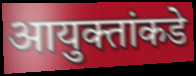
आयुक्तांकडे